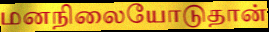
மனநிலையோடுதான்